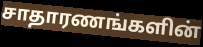
சாதாரணங்களின்